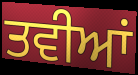
ਤਵੀਆਂ